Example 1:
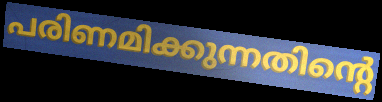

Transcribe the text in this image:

പരിണമിക്കുന്നതിന്റെ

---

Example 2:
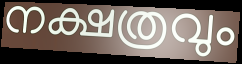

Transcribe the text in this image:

നക്ഷത്രവും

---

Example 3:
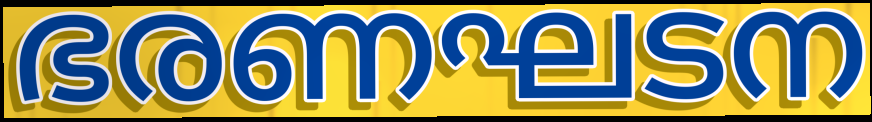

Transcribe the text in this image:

ഭരണഘടന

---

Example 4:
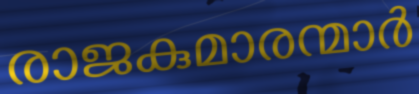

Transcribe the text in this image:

രാജകുമാരന്മാർ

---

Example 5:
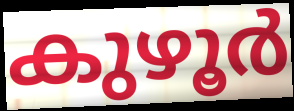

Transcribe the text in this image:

കുഴൂർ